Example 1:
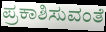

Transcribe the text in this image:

ಪ್ರಕಾಶಿಸುವಂತೆ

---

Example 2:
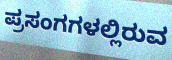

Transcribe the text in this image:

ಪ್ರಸಂಗಗಳಲ್ಲಿರುವ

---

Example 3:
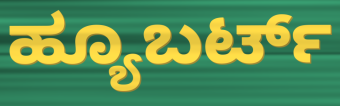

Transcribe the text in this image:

ಹ್ಯೂಬರ್ಟ್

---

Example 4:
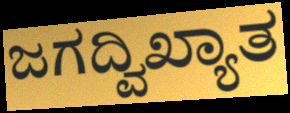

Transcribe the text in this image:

ಜಗದ್ವಿಖ್ಯಾತ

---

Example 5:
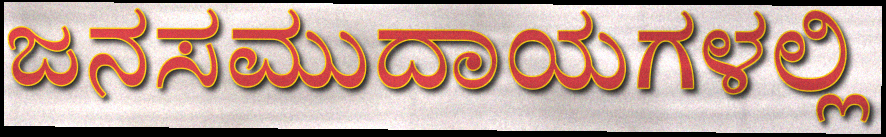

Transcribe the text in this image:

ಜನಸಮುದಾಯಗಳಲ್ಲಿ